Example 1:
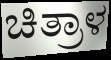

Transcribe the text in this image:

ಚಿತ್ರಾಳ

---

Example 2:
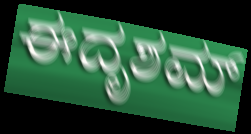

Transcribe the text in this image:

ಈದೃಶಮ್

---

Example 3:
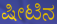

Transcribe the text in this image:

ಷೀಟಿನ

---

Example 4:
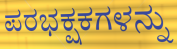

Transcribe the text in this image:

ಪರಭಕ್ಷಕಗಳನ್ನು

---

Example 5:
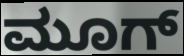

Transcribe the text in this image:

ಮೂಗ್